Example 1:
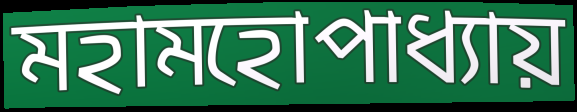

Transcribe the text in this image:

মহামহোপাধ্যায়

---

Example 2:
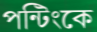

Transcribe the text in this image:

পন্টিংকে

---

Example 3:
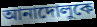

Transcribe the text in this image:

আনাদোলুকে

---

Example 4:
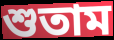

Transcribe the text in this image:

শুতাম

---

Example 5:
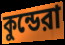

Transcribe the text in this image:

কুন্ডেরা